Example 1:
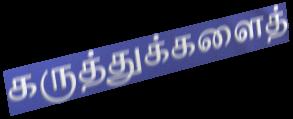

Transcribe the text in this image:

கருத்துக்களைத்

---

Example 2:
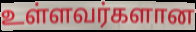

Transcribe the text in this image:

உள்ளவர்களான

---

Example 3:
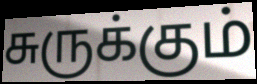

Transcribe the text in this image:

சுருக்கும்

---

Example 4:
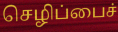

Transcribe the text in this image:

செழிப்பைச்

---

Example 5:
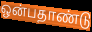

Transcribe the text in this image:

ஒன்பதாண்டு